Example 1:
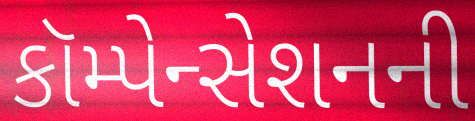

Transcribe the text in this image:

કૉમ્પેન્સેશનની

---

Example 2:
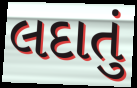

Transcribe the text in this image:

લદાતું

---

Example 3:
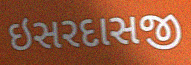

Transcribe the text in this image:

ઇસરદાસજી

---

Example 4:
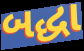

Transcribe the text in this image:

બદ્ધા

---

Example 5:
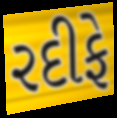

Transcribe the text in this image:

રદીફે